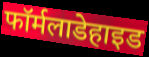
फॉर्मलाडेहाइड